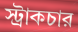
স্ট্রাকচার